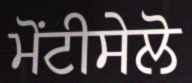
ਮੋਂਟੀਸੇਲੋ